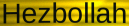
Hezbollah